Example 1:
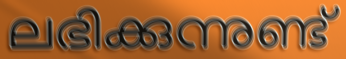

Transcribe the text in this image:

ലഭിക്കുന്നുണ്ട്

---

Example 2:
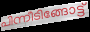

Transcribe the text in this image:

പിന്നീടിങ്ങോട്ട്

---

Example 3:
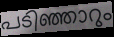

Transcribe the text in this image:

പടിഞ്ഞാറും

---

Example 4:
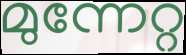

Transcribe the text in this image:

മുന്നേറ്റ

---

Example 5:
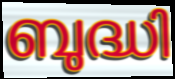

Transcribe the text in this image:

ബുദ്ധി